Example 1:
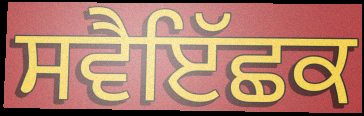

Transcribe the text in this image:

ਸਵੈਇੱਛਕ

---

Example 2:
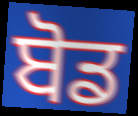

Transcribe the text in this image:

ਬੋਡ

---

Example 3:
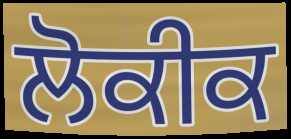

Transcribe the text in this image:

ਲੋਕੀਕ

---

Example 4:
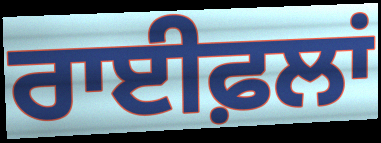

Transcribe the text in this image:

ਰਾਈਫ਼ਲਾਂ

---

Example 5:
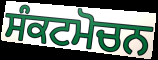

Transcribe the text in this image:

ਸੰਕਟਮੋਚਨ